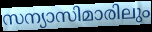
സന്യാസിമാരിലും